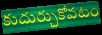
కుదుర్చుకోవటం